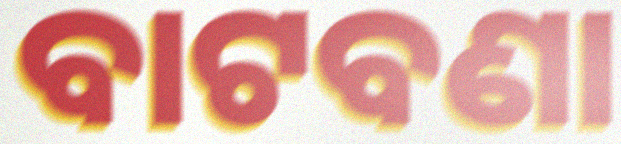
ବାଟବଣା